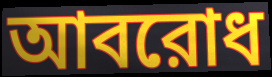
আবরোধ